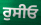
ਰੁਸੀਓ